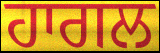
ਹਾਗਲ